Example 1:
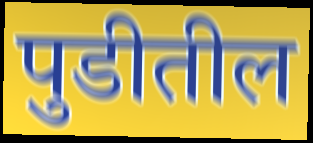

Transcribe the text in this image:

पुडीतील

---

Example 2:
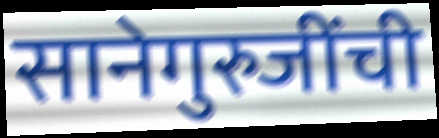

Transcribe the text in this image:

सानेगुरुजींची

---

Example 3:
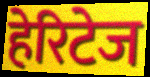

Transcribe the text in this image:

हेरिटेज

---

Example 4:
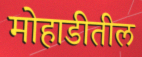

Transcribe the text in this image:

मोहाडीतील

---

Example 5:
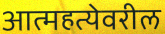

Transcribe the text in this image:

आत्महत्येवरील